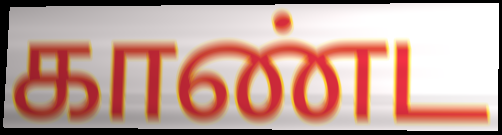
காண்ட